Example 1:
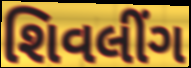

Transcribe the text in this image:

શિવલીંગ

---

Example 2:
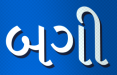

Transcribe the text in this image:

બગી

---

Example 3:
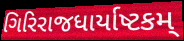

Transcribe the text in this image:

ગિરિરાજધાર્યાષ્ટકમ્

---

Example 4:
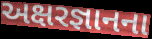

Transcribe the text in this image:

અક્ષરજ્ઞાનના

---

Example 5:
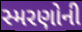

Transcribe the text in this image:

સ્મરણોની